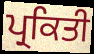
ਪ੍ਰਕਿਤੀ